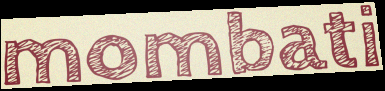
mombati